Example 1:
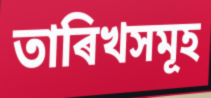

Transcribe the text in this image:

তাৰিখসমূহ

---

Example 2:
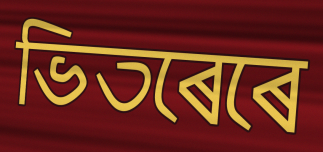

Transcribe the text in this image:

ভিতৰেৰে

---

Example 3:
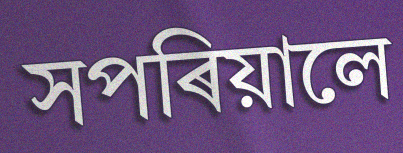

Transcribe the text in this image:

সপৰিয়ালে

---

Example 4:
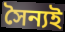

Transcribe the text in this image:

সৈন্যই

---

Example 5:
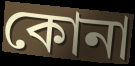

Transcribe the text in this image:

কোনা